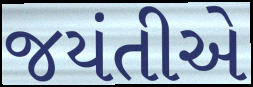
જયંતીએ